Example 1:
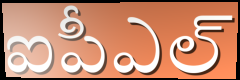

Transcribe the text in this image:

ఐపీఎల్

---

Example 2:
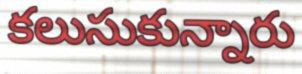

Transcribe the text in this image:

కలుసుకున్నారు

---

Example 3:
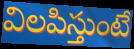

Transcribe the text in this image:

విలపిస్తుంటే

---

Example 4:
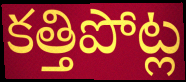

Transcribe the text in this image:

కత్తిపోట్ల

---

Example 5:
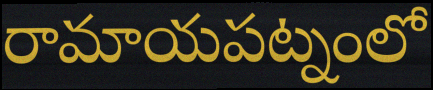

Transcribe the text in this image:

రామాయపట్నంలో